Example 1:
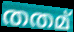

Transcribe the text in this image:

തതമ്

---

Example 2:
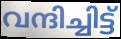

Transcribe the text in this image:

വന്ദിച്ചിട്ട്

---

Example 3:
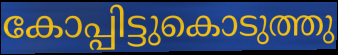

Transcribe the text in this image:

കോപ്പിട്ടുകൊടുത്തു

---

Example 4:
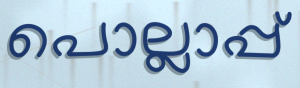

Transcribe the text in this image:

പൊല്ലാപ്പ്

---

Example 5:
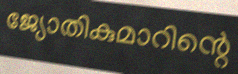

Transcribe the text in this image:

ജ്യോതികുമാറിന്റെ